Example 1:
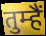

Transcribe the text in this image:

तुम्हैं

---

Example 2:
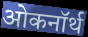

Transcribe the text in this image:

ओकनॉर्थ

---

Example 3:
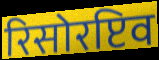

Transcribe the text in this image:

रिसोरप्टिव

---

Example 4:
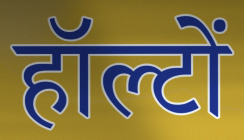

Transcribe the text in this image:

हॉल्टों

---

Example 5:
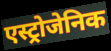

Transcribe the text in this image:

एस्ट्रोजेनिक